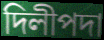
দিলীপদা